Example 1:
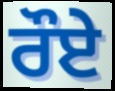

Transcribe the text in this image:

ਰੌਏ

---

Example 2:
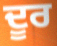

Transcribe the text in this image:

ਦੂਰ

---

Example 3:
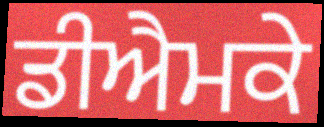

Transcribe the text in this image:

ਡੀਐਮਕੇ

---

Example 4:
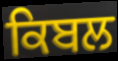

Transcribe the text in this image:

ਕਿਬਲ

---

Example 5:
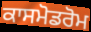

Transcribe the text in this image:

ਕਾਸਮੋਡਰੋਮ